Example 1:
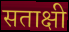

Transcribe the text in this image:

सताक्षी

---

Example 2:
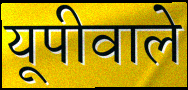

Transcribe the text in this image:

यूपीवाले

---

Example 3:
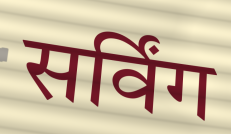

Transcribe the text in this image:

सर्विंग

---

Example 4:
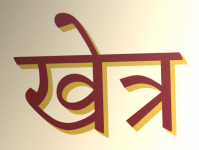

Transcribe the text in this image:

खेत्र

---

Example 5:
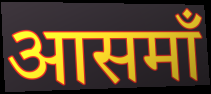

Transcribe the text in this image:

आसमाँ